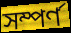
সম্পর্ণ